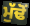
ਮੁੱਢੋਂ